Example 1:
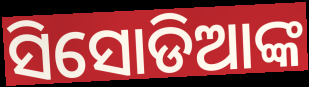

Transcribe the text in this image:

ସିସୋଡିଆଙ୍କ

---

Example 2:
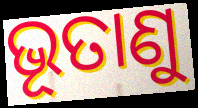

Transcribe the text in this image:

ଭୂତାଣୁ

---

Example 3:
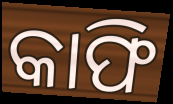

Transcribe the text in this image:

କାଫି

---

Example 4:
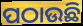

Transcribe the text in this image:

ପଠାଉଛି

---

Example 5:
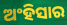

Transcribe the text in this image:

ଅଂହିସାର